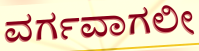
ವರ್ಗವಾಗಲೀ